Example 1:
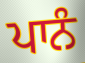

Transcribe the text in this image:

ਪਾਨੰ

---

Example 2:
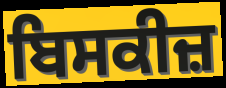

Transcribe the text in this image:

ਬਿਸਕੀਜ਼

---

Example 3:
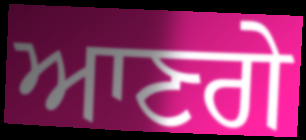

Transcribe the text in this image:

ਆਣਗੇ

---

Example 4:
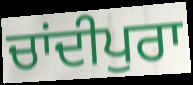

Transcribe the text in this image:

ਚਾਂਦੀਪੁਰਾ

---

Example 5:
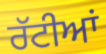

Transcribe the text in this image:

ਰੱਟੀਆਂ